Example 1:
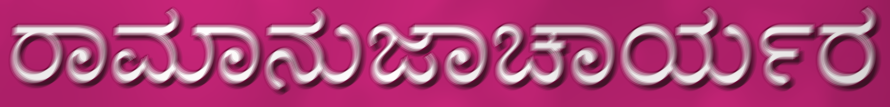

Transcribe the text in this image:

ರಾಮಾನುಜಾಚಾರ್ಯರ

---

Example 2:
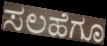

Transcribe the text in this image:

ಸಲಹೆಗೂ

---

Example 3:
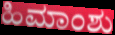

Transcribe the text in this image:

ಹಿಮಾಂಶು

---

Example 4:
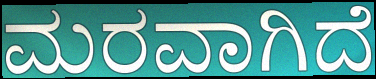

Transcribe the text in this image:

ಮರವಾಗಿದೆ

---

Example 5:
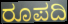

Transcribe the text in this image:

ರೂಪದಿ